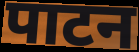
पाटन